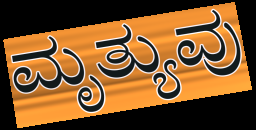
ಮೃತ್ಯುವು